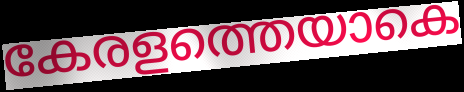
കേരളത്തെയാകെ